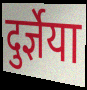
दुर्ज्ञेया